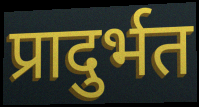
प्रादुर्भत